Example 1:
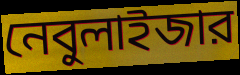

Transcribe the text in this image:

নেবুলাইজার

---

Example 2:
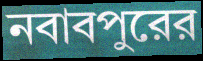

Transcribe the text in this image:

নবাবপুরের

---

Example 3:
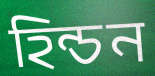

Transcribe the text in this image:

হিন্ডন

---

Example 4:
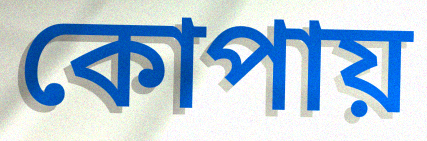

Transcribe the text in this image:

কোপায়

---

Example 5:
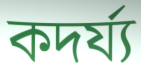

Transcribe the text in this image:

কদর্য্য